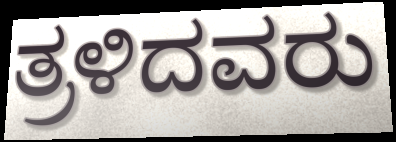
ತ್ರಳಿದವರು